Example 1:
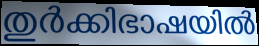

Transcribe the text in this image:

തുർക്കിഭാഷയിൽ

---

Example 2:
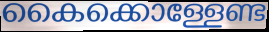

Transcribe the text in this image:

കൈക്കൊള്ളേണ്ട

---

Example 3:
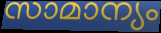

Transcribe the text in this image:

സാമാന്യം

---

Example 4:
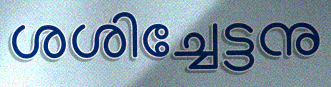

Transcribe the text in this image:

ശശിച്ചേട്ടനു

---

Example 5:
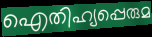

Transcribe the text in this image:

ഐതിഹ്യപ്പെരുമ